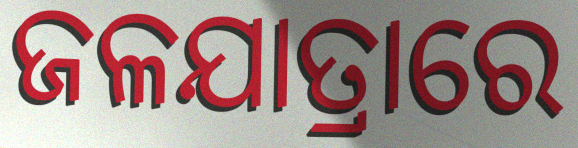
ଜଳଯାତ୍ରାରେ